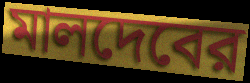
মালদেবের